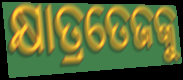
କ୍ଷାତ୍ରତେଜକୁ